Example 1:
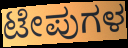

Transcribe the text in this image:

ಟೇಪುಗಳ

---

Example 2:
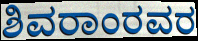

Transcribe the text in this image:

ಶಿವರಾಂರವರ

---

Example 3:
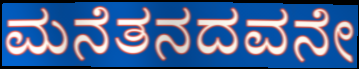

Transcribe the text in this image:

ಮನೆತನದವನೇ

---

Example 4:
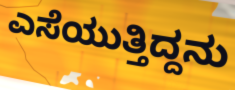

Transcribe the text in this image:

ಎಸೆಯುತ್ತಿದ್ದನು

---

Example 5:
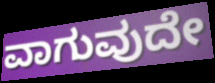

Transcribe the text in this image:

ವಾಗುವುದೇ